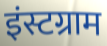
इंस्टग्राम